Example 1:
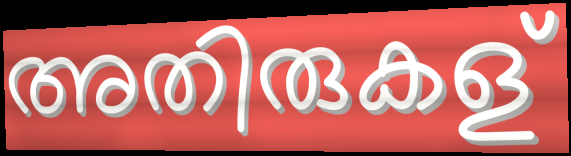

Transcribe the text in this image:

അതിരുകള്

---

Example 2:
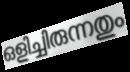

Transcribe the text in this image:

ഒളിച്ചിരുന്നതും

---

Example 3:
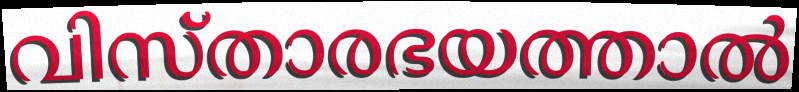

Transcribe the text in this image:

വിസ്താരഭയത്താൽ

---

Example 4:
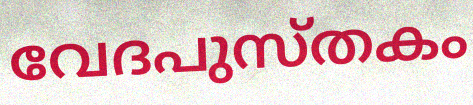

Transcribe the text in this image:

വേദപുസ്തകം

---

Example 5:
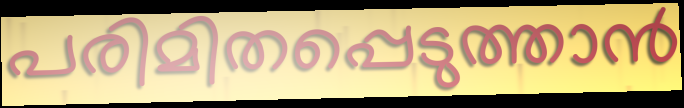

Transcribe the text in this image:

പരിമിതപ്പെടുത്താൻ